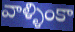
వాళ్ళింకా